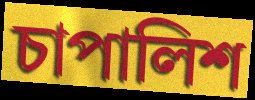
চাপালিশ